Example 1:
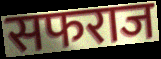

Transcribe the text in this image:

सफराज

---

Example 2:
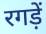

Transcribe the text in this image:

रगड़ें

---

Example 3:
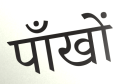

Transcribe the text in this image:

पाँखों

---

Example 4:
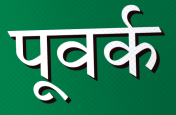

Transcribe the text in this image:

पूवर्क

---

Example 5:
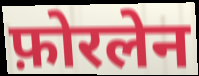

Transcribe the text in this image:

फ़ोरलेन